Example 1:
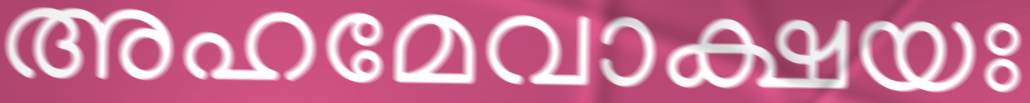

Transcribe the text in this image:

അഹമേവാക്ഷയഃ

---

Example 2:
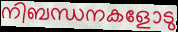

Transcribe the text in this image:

നിബന്ധനകളോടു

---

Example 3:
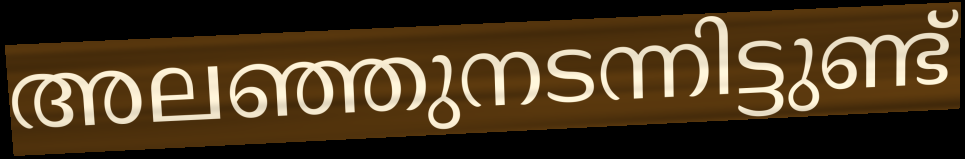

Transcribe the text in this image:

അലഞ്ഞുനടന്നിട്ടുണ്ട്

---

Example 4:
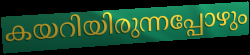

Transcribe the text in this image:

കയറിയിരുന്നപ്പോഴും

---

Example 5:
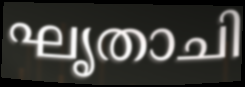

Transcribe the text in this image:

ഘൃതാചി